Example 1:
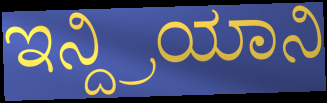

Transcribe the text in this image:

ಇನ್ದ್ರಿಯಾನಿ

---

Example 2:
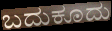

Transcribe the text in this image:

ಬದುಕೂದು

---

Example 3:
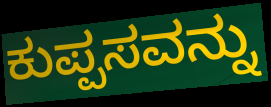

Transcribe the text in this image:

ಕುಪ್ಪಸವನ್ನು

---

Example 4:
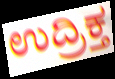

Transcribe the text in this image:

ಉದ್ರಿಕ್ತ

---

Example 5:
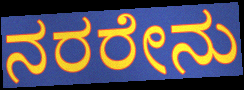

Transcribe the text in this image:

ನರರೇನು